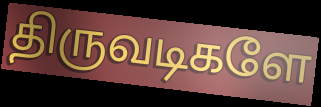
திருவடிகளே